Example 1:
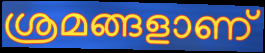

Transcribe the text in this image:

ശ്രമങ്ങളാണ്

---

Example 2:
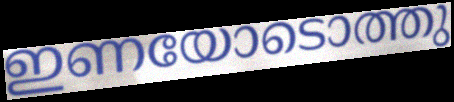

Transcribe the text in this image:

ഇണയോടൊത്തു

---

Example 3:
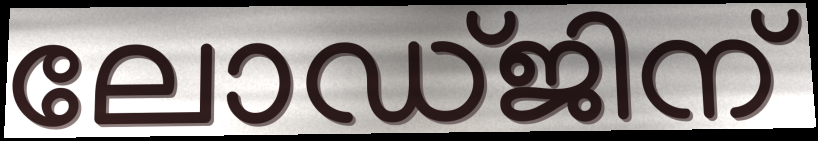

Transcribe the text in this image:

ലോഡ്ജിന്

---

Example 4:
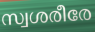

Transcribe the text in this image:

സ്വശരീരേ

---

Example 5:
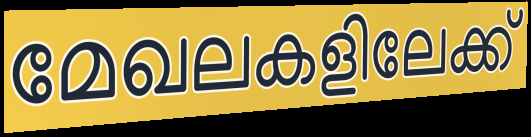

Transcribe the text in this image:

മേഖലകളിലേക്ക്